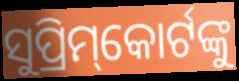
ସୁପ୍ରିମ୍‌କୋର୍ଟଙ୍କୁ